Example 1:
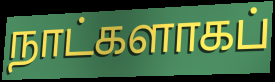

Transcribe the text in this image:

நாட்களாகப்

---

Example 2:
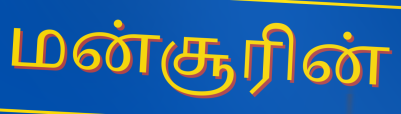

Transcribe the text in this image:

மன்சூரின்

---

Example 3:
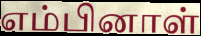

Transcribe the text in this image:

எம்பினாள்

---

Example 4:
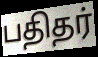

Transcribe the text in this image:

பதிதர்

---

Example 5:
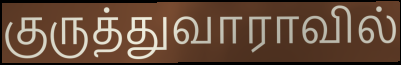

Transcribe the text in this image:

குருத்துவாராவில்